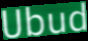
Ubud